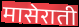
मासेराती